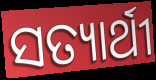
ସତ୍ୟାର୍ଥୀ